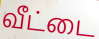
வீட்டை